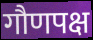
गौणपक्ष